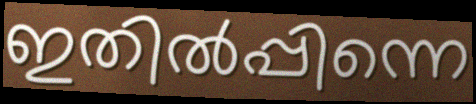
ഇതിൽപ്പിന്നെ